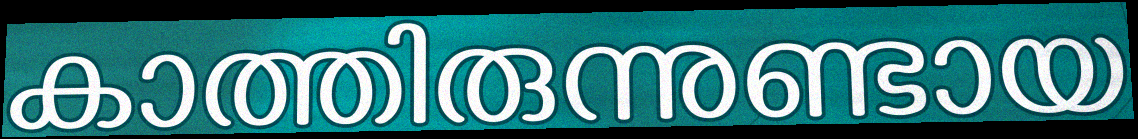
കാത്തിരുന്നുണ്ടായ